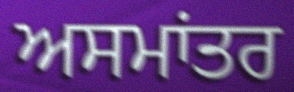
ਅਸਮਾਂਤਰ